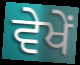
ਵੇਖੇਂ